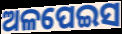
ଅଳପେଇସ